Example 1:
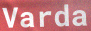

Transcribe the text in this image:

Varda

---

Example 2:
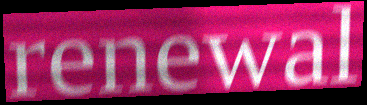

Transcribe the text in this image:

renewal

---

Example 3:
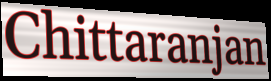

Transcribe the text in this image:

Chittaranjan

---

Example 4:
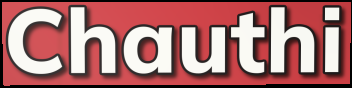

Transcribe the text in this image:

Chauthi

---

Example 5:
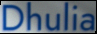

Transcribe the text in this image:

Dhulia